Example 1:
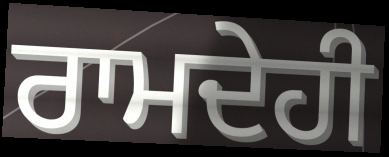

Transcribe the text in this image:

ਰਾਮਦੇਹੀ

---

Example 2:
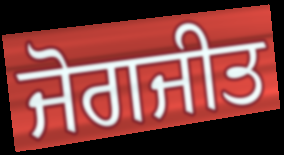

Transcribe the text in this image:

ਜੋਗਜੀਤ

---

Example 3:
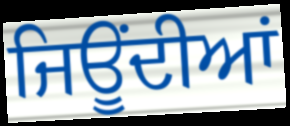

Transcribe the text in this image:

ਜਿਊਂਦੀਆਂ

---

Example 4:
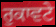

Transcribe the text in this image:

ਰੁਕਾਵਟੇ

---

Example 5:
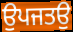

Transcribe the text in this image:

ਉਪਜਤਉ